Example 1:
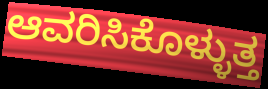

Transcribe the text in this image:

ಆವರಿಸಿಕೊಳ್ಳುತ್ತ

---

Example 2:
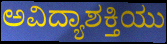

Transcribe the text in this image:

ಅವಿದ್ಯಾಶಕ್ತಿಯು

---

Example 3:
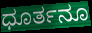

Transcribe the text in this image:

ಧೂರ್ತನೂ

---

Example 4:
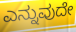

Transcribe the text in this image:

ಎನ್ನುವುದೇ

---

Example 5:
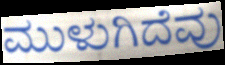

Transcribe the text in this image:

ಮುಳುಗಿದೆವು